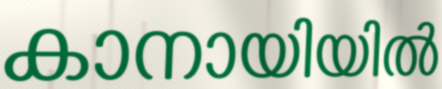
കാനായിയിൽ